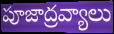
పూజాద్రవ్యాలు